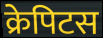
क्रेपिटस